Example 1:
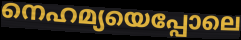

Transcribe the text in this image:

നെഹമ്യയെപ്പോലെ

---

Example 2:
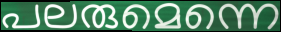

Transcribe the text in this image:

പലരുമെന്നെ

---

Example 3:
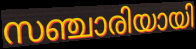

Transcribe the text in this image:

സഞ്ചാരിയായി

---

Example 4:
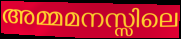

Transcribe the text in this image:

അമ്മമനസ്സിലെ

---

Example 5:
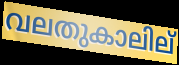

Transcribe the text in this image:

വലതുകാലില്